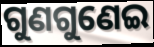
ଗୁଣଗୁଣେଇ